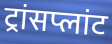
ट्रांसप्लांट